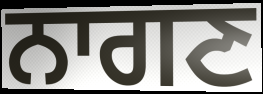
ਨਾਗਣ